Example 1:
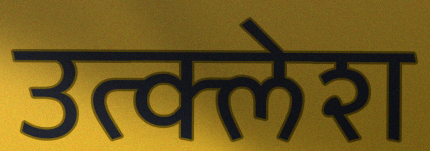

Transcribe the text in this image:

उत्क्लेश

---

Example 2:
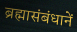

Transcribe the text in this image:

ब्रह्मासंबंधानें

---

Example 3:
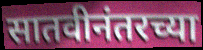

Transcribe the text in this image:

सातवीनंतरच्या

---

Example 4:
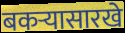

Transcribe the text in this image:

बकऱ्यासारखे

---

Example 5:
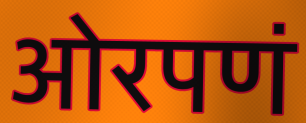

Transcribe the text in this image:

ओरपणं